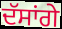
ਦੱਸਾਂਗੇ